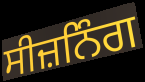
ਸੀਜ਼ਨਿੰਗ